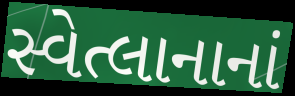
સ્વેત્લાનાનાં